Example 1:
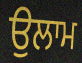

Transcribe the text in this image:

ਉਲਾਮ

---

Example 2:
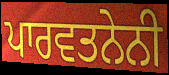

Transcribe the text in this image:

ਪਾਰਵਤਨੇਨੀ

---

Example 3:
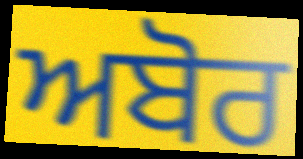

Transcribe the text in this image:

ਅਬੋਰ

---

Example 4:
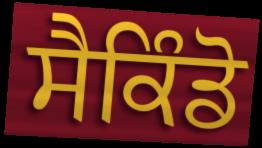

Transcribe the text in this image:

ਸੈਕਿੰਡੋ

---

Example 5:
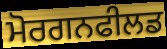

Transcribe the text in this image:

ਮੋਰਗਨਫੀਲਡ